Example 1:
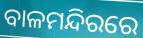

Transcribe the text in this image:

ବାଳମନ୍ଦିରରେ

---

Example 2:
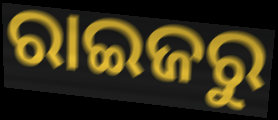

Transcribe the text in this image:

ରାଇଜରୁ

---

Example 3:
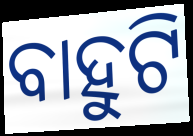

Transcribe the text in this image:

ବାହୁଟି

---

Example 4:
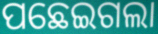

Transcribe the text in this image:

ପଛେଇଗଲା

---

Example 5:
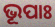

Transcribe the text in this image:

ଭୂପାଃ